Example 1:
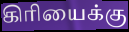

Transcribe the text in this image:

கிரியைக்கு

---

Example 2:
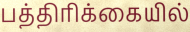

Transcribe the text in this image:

பத்திரிக்கையில்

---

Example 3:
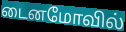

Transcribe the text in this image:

டைனமோவில்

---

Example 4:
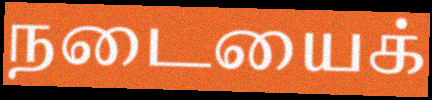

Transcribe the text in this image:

நடையைக்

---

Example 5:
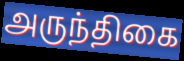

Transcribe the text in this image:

அருந்திகை